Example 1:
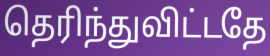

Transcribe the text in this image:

தெரிந்துவிட்டதே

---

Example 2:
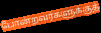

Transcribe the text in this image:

போன்றவர்களுக்குத்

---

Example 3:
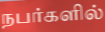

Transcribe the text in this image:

நபர்களில்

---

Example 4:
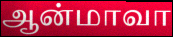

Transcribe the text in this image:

ஆன்மாவா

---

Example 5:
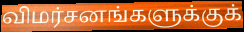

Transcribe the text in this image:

விமர்சனங்களுக்குக்